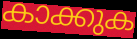
കാക്കുക